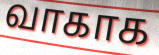
வாகாக